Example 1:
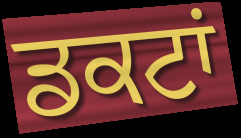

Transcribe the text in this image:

ਡਕਟਾਂ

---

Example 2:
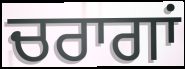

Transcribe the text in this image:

ਚਰਾਗਾਂ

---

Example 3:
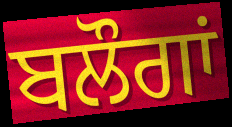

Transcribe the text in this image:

ਬਲੌਗਾਂ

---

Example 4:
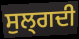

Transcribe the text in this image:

ਸੁਲ੍ਗਦੀ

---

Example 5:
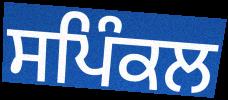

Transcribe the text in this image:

ਸਪਿੰਕਲ